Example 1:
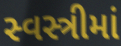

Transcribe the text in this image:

સ્વસ્ત્રીમાં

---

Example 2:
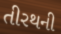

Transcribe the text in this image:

તીરથની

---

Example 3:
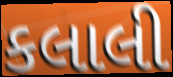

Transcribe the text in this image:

કલાલી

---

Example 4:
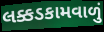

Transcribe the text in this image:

લક્કડકામવાળું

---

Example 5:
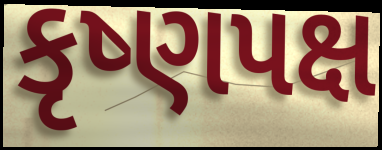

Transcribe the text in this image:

કૃષ્ણપક્ષ